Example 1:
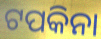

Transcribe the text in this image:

ଟପକିନା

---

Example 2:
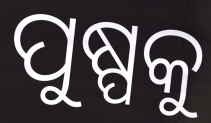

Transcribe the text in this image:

ପୁଷ୍ପକୁ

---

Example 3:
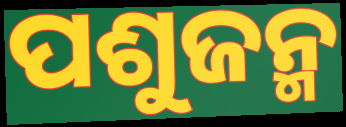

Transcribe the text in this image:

ପଶୁଜନ୍ମ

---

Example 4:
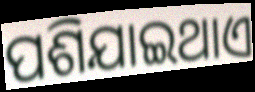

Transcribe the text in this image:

ପଶିଯାଇଥାଏ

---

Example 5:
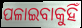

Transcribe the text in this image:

ପଳାଇବାକୁହିଁ